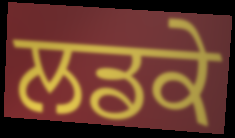
ਲਡਕੇ